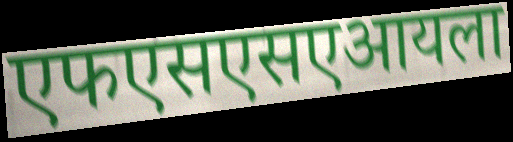
एफएसएसएआयला